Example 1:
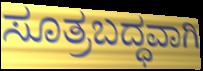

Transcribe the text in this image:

ಸೂತ್ರಬದ್ಧವಾಗಿ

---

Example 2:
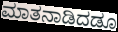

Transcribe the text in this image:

ಮಾತನಾಡಿದಡೂ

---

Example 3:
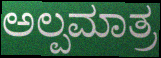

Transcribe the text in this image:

ಅಲ್ಪಮಾತ್ರ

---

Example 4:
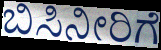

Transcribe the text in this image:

ಬಿಸಿನೀರಿಗೆ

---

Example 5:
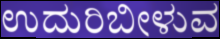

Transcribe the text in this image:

ಉದುರಿಬೀಳುವ